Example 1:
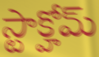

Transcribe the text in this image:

స్టాక్హోమ్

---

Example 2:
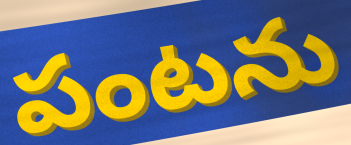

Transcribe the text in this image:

పంటను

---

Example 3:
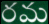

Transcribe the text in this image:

రమ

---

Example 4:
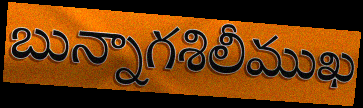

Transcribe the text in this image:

బున్నాగశిలీముఖ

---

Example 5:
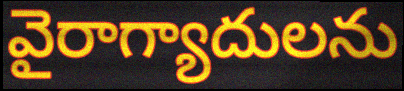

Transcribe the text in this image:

వైరాగ్యాదులను